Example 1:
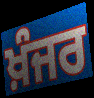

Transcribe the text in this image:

ਖ਼ੰਜਰ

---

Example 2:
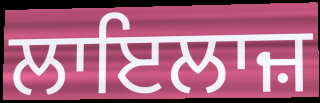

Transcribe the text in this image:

ਲਾਇਲਾਜ਼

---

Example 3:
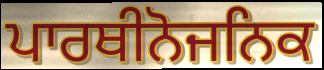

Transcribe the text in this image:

ਪਾਰਥੀਨੋਜਨਿਕ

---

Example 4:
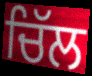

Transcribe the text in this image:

ਚਿੱਲ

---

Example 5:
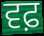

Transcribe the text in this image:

ਵਫ਼